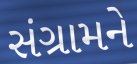
સંગ્રામને